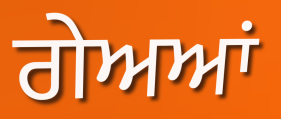
ਗੇਅਆਂ